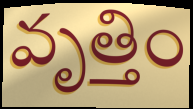
వృత్తిం